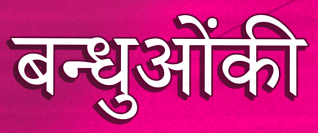
बन्धुओंकी